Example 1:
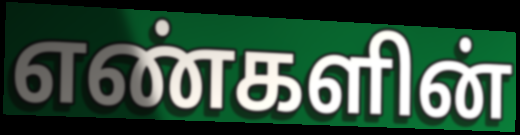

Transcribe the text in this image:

எண்களின்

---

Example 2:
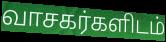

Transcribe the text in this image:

வாசகர்களிடம்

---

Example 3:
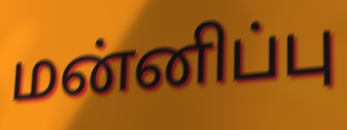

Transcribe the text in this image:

மன்னிப்பு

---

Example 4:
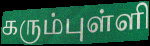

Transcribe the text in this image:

கரும்புள்ளி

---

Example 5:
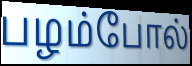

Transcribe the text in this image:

பழம்போல்